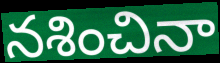
నశించినా